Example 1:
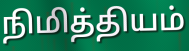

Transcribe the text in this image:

நிமித்தியம்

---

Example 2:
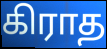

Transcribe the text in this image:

கிராத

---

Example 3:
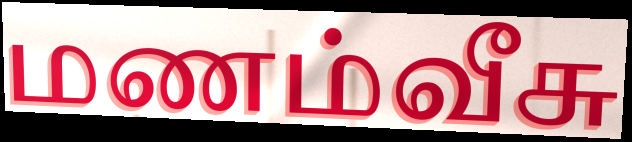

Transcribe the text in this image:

மணம்வீசு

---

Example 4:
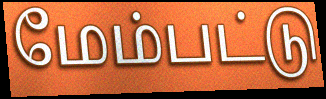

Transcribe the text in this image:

மேம்பட்டு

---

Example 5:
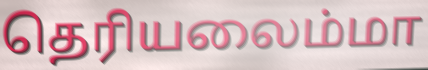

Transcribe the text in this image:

தெரியலைம்மா